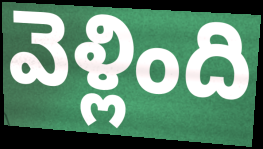
వెళ్లింది